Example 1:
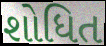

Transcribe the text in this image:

શોધિત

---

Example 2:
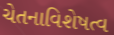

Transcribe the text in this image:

ચેતનાવિશેષત્વ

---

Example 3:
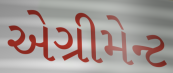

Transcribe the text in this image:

એગ્રીમેન્ટ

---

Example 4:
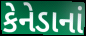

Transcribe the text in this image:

કેનેડાનાં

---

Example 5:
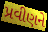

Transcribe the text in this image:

પ્રવીણને